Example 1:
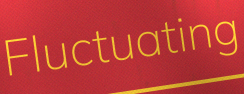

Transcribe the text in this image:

Fluctuating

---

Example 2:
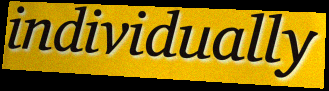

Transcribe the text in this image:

individually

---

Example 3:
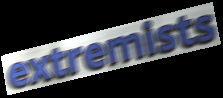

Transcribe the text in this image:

extremists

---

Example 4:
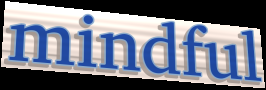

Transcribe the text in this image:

mindful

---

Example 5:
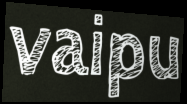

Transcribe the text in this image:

vaipu